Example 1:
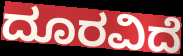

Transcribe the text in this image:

ದೂರವಿದೆ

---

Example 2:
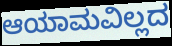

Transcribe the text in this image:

ಆಯಾಮವಿಲ್ಲದ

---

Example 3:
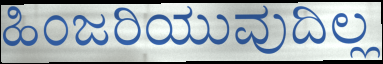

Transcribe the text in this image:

ಹಿಂಜರಿಯುವುದಿಲ್ಲ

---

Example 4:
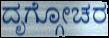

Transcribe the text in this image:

ದೃಗ್ಗೋಚರ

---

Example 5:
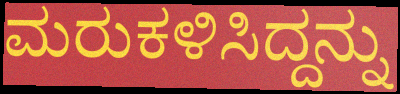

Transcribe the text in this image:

ಮರುಕಳಿಸಿದ್ದನ್ನು